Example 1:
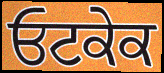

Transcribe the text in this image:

ਓਟਕੇਕ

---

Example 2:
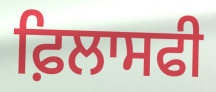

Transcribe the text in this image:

ਫ਼ਿਲਾਸਫੀ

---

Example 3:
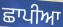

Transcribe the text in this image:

ਛਾਪੀਆ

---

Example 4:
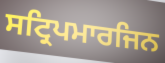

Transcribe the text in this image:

ਸਟ੍ਰਿਪਮਾਰਜਿਨ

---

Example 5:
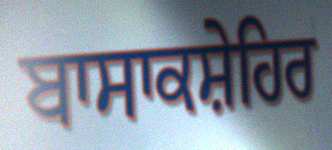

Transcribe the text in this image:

ਬਾਸਾਕਸ਼ੇਹਿਰ